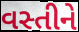
વસ્તીને